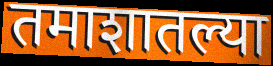
तमाशातल्या